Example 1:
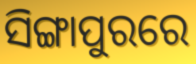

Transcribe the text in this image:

ସିଙ୍ଗାପୁରରେ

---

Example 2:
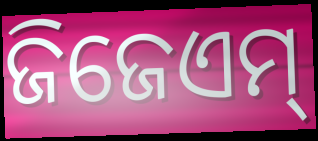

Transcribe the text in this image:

ଜିଜେଏମ୍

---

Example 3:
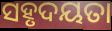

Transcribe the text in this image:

ସହୃଦୟତା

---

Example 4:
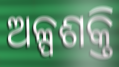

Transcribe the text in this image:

ଅଳ୍ପଶକ୍ତି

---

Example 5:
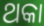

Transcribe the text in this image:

ଥକା